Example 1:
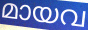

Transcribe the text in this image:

മായവ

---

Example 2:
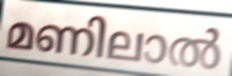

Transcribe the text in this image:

മണിലാൽ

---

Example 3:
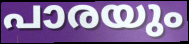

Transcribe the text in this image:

പാരയും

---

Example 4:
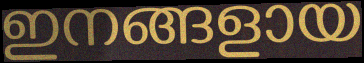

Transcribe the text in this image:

ഇനങ്ങളായ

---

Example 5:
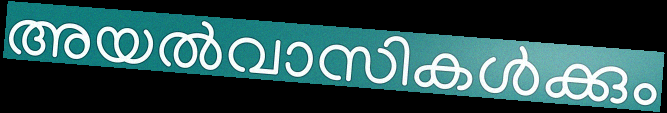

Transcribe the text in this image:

അയൽവാസികൾക്കും